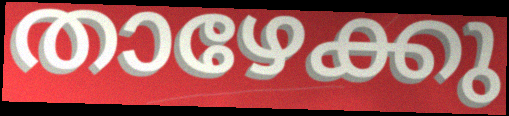
താഴേക്കു